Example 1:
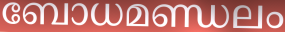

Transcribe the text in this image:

ബോധമണ്ഡലം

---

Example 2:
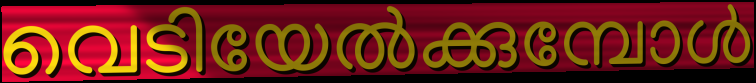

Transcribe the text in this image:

വെടിയേൽക്കുമ്പോൾ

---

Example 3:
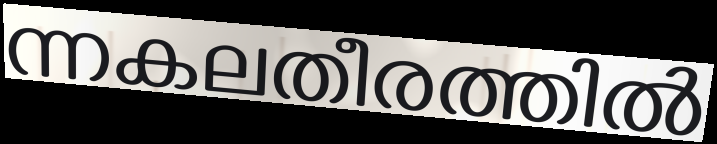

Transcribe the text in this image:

ന്നകലതീരത്തിൽ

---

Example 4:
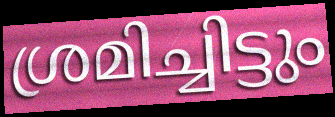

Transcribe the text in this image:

ശ്രമിച്ചിട്ടും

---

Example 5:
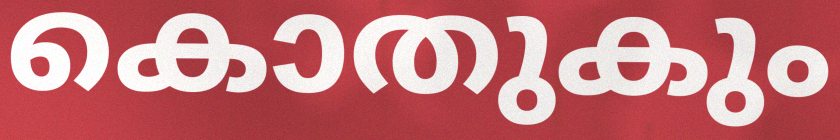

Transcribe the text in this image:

കൊതുകും